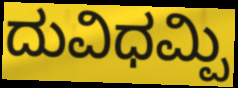
ದುವಿಧಮ್ಪಿ